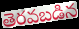
తెరవబడిన